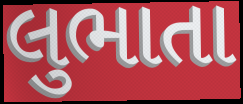
લુભાતા